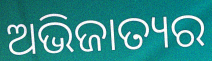
ଅଭିଜାତ୍ୟର